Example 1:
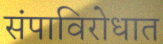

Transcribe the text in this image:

संपाविरोधात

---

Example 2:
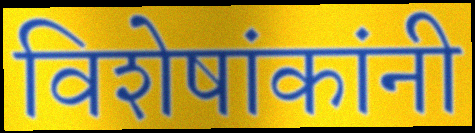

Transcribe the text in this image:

विशेषांकांनी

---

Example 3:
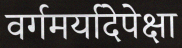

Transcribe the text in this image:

वर्गमर्यादेपेक्षा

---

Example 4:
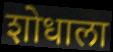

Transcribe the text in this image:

शोधाला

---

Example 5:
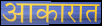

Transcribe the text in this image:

आकारात